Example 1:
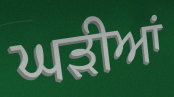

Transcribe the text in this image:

ਘੜੀਆਂ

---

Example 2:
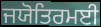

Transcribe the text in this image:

ਜਯੋਤਿਰਮਈ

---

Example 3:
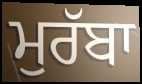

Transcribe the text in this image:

ਮੁਰੱਬਾ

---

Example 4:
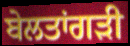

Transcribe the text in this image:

ਬੇਲਤਾਂਗੜੀ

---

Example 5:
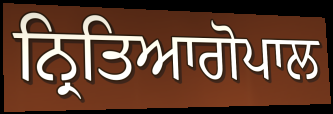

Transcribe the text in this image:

ਨ੍ਰਿਤਿਆਗੋਪਾਲ